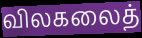
விலகலைத்